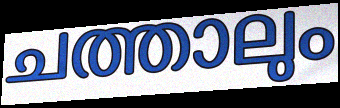
ചത്താലും